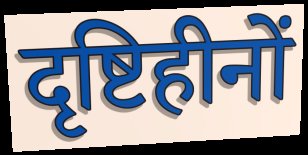
दृष्टिहीनों